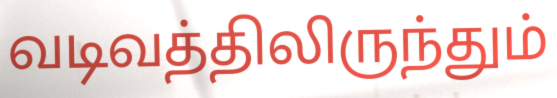
வடிவத்திலிருந்தும்